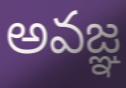
అవజ్ఞ